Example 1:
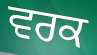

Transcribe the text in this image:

ਵਰਕ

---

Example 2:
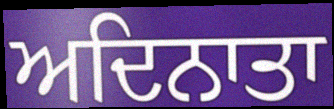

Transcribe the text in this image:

ਅਦਿਨਾਤਾ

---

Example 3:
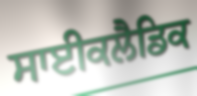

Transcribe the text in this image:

ਸਾਈਕਲੈਡਿਕ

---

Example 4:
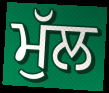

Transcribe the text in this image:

ਮੁੱਲ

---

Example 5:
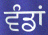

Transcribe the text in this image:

ਵੰਡਾਂ